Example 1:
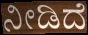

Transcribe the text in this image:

ನೀಡಿದೆ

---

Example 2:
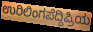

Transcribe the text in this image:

ಉರಿಲಿಂಗಪೆದ್ದಿಪ್ರಿಯ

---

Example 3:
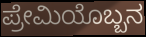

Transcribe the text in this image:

ಪ್ರೇಮಿಯೊಬ್ಬನ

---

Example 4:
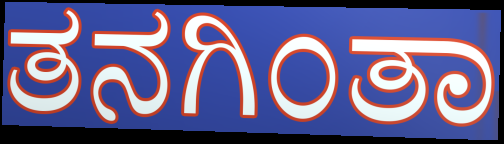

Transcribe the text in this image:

ತನಗಿಂತಾ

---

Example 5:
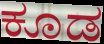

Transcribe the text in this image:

ಕೂಡ